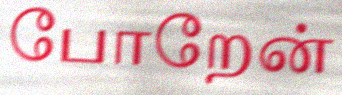
போறேன்